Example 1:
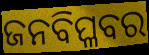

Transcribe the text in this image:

ଜନବିପ୍ଳବର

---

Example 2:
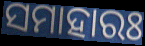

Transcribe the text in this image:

ସମାହାରଃ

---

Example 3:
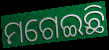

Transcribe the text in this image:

ମଗେଇଛି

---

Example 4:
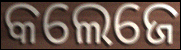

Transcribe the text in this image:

କଲେଜେ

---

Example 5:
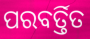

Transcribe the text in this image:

ପରବର୍ତ୍ତିତ